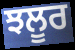
ਝਲੂਰ